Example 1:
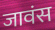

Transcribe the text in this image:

जावंस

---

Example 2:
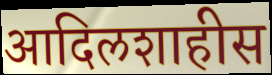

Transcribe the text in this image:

आदिलशाहीस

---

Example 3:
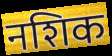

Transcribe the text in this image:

नशिक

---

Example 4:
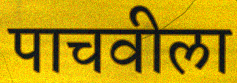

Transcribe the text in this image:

पाचवीला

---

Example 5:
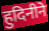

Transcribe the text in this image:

हुदिनीने